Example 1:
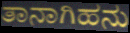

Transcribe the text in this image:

ತಾನಾಗಿಹನು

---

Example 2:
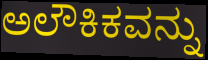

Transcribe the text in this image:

ಅಲೌಕಿಕವನ್ನು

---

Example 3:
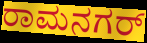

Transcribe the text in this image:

ರಾಮನಗರ್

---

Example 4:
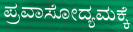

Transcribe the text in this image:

ಪ್ರವಾಸೋದ್ಯಮಕ್ಕೆ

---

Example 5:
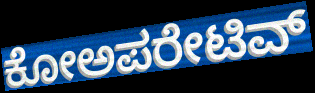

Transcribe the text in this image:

ಕೋಅಪರೇಟಿವ್